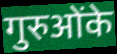
गुरुओंके